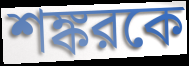
শঙ্করকে